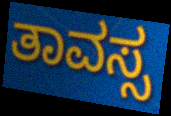
ತಾವಸ್ಸ